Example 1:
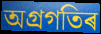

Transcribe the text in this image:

অগ্ৰগতিৰ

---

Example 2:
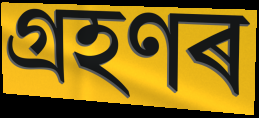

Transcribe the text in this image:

গ্ৰহণৰ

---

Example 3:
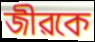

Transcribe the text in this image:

জীৱকে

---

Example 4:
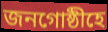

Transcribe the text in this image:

জনগোষ্ঠীহে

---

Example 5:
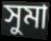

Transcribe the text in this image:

সুমা